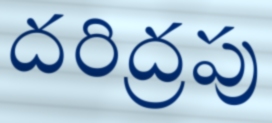
దరిద్రపు